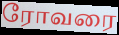
ரோவரை